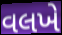
વલખે